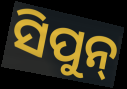
ସିପୁନ୍